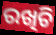
ରଖିଚି